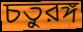
চতুরঙ্গ